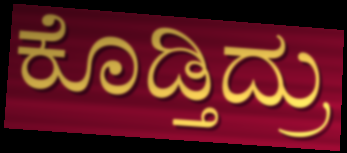
ಕೊಡ್ತಿದ್ರು